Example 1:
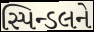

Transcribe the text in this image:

સ્પિન્ડલને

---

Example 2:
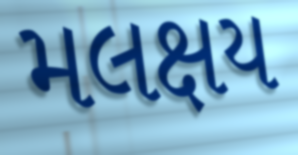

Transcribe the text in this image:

મલક્ષય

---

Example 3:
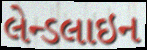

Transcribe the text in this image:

લેન્ડલાઇન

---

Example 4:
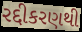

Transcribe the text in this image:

રદ્દીકરણથી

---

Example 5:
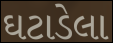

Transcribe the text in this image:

ઘટાડેલા